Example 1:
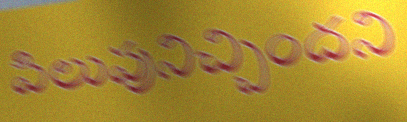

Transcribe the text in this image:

పిలుపునిచ్చిందని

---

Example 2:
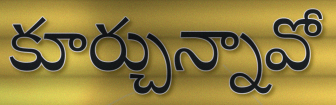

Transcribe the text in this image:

కూర్చున్నావో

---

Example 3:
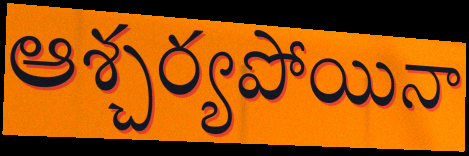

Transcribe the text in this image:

ఆశ్చర్యపోయినా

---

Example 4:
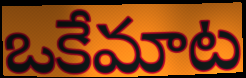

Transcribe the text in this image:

ఒకేమాట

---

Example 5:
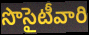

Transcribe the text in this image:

సొసైటీవారి